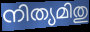
നിത്യമിതു